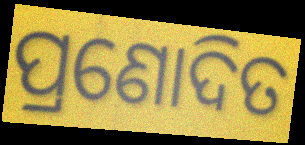
ପ୍ରଣୋଦିତ